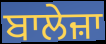
ਬਾਲੇਜ਼ਾ